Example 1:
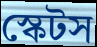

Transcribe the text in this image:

স্কেটস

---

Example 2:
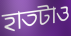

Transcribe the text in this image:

হাতটাও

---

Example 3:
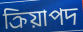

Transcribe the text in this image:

ক্রিয়াপদ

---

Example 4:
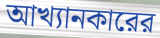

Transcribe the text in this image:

আখ্যানকারের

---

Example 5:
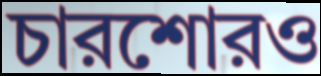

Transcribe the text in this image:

চারশোরও